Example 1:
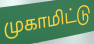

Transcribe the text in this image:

முகாமிட்டு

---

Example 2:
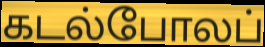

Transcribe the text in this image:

கடல்போலப்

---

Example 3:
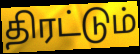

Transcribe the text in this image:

திரட்டும்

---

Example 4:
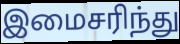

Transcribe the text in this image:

இமைசரிந்து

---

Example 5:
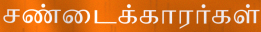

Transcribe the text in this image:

சண்டைக்காரர்கள்